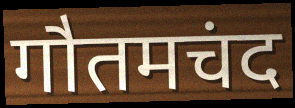
गौतमचंद